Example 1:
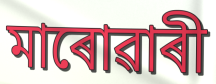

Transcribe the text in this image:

মাৰোৱাৰী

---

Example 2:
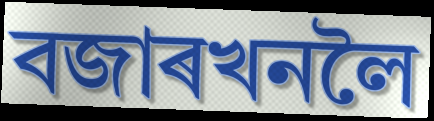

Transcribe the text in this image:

বজাৰখনলৈ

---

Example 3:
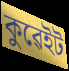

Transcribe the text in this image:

কুৱেইট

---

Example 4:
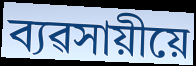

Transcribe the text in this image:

ব্যৱসায়ীয়ে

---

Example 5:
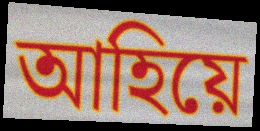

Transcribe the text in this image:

আহিয়ে